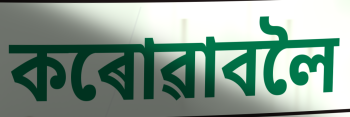
কৰোৱাবলৈ